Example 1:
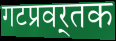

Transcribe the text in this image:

गटप्रवर्तक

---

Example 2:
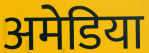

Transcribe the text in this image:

अमेडिया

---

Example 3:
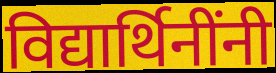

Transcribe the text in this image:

विद्यार्थिनींनी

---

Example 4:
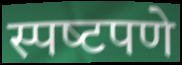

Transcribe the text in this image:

स्‍पष्‍टपणे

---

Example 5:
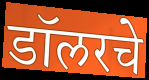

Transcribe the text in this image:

डॉलरचे